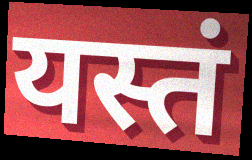
यस्तं